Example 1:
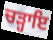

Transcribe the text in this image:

ਚੜ੍ਹਾਇ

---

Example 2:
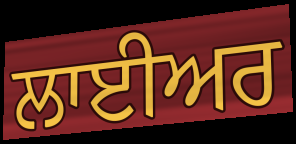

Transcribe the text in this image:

ਲਾਈਅਰ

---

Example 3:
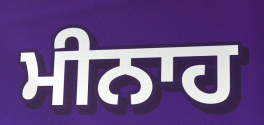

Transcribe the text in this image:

ਮੀਨਾਹ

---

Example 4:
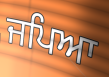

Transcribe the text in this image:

ਜਪਿਆ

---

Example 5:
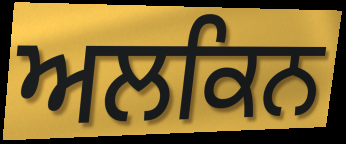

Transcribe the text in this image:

ਅਲਕਿਨ